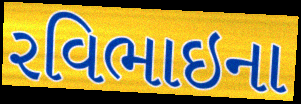
રવિભાઇના